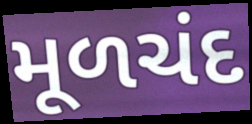
મૂળચંદ